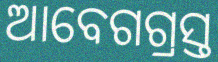
ଆବେଗଗ୍ରସ୍ତ